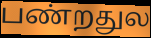
பண்றதுல